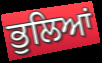
ਭੁਲਿਆਂ